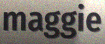
maggie